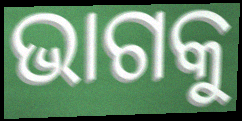
ଭାଗକୁ